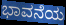
ಭಾವನೆಯ